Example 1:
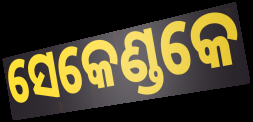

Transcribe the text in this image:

ସେକେଣ୍ଡକେ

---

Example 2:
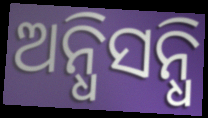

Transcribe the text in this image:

ଅନ୍ଧିସନ୍ଧି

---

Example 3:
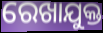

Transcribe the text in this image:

ରେଖାଯୁକ୍ତ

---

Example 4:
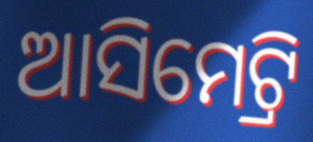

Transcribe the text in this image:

ଆସିମେଟ୍ରି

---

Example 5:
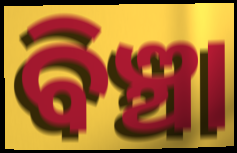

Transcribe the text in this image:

ବିଞ୍ଚା